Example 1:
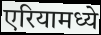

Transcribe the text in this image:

एरियामध्ये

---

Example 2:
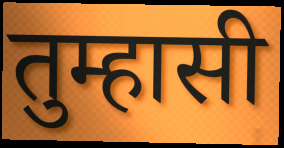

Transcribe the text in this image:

तुम्हासी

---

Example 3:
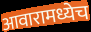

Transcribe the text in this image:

आवारामध्येच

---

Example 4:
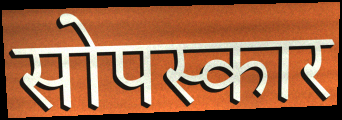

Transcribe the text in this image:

सोपस्कार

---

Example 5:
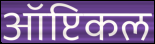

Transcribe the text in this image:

ऑप्टिकल